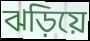
ঝড়িয়ে